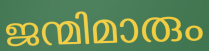
ജന്മിമാരും